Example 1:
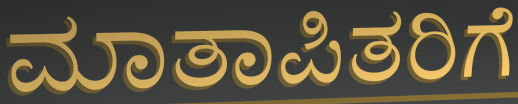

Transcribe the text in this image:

ಮಾತಾಪಿತರಿಗೆ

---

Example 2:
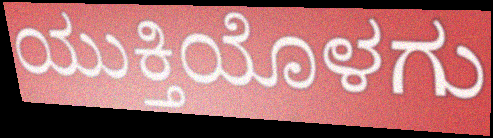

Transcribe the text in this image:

ಯುಕ್ತಿಯೊಳಗು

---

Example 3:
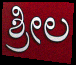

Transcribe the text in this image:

ಶ್ರೀಲ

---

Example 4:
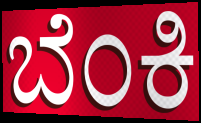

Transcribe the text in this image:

ಬೆಂಕಿ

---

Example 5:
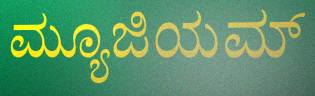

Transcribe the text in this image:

ಮ್ಯೂಜಿಯಮ್